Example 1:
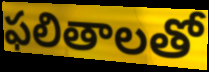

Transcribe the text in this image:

ఫలితాలతో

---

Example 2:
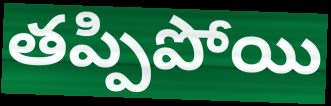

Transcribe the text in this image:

తప్పిపోయి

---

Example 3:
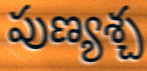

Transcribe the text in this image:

పుణ్యశ్చ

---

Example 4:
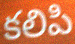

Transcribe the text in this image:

కలిపి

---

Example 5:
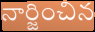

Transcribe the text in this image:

నార్జించిన